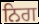
ਨਿਗ